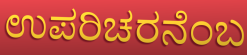
ಉಪರಿಚರನೆಂಬ